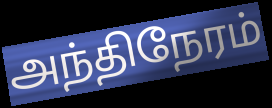
அந்திநேரம்